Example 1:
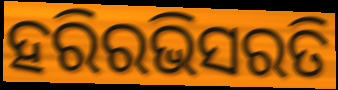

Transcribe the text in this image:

ହରିରଭିସରତି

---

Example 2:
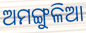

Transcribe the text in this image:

ଅମଙ୍ଗୁଳିଆ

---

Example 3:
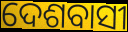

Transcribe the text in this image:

ଦେଶବାସୀ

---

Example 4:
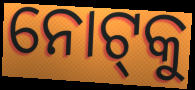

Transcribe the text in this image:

ନୋଟ୍‌କୁ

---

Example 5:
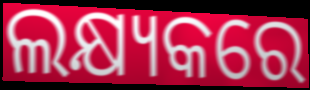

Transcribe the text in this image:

ଲକ୍ଷ୍ୟକରେ